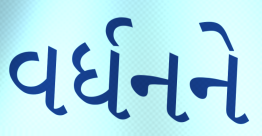
વર્ધનને